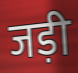
जड़ी